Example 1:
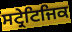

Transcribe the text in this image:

ਸਟ੍ਰੇਟਿਜਿਕ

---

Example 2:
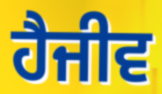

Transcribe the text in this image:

ਹੈਜੀਵ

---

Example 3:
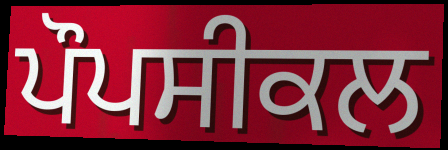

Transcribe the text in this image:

ਪੌਪਸੀਕਲ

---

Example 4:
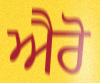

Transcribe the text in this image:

ਐਰੋ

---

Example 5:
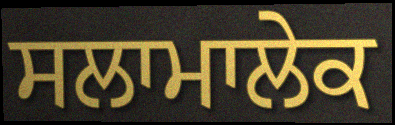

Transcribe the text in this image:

ਸਲਾਮਾਲੇਕ